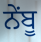
ਨੇਂਬੂ